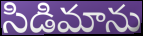
సిడిమాను